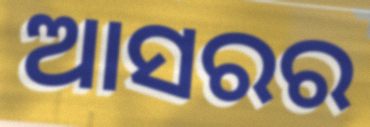
ଆସରର